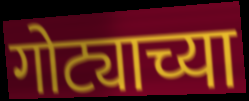
गोट्याच्या